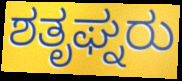
ಶತೃಘ್ನರು